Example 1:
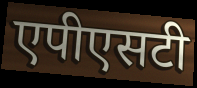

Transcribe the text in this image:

एपीएसटी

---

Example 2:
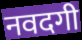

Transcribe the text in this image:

नवदगी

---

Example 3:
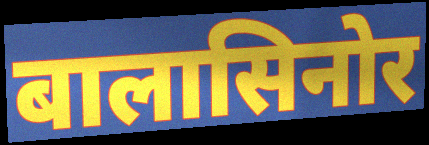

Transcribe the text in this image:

बालासिनोर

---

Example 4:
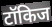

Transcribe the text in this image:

टॉकिज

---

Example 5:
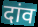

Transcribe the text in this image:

दांव